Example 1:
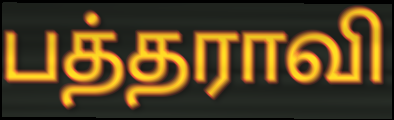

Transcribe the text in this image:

பத்தராவி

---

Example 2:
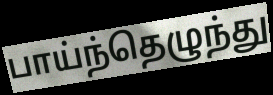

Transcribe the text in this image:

பாய்ந்தெழுந்து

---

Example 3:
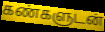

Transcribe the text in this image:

கண்களுடன்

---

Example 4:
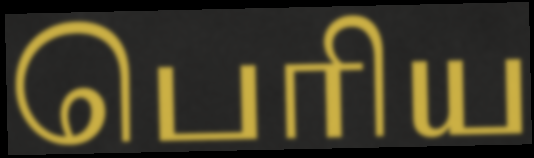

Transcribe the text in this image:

பெரிய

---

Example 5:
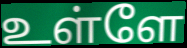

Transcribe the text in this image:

உள்ளே